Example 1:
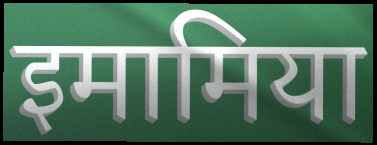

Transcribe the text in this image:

इमामिया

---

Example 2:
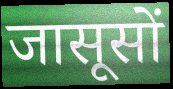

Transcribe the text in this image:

जासूसों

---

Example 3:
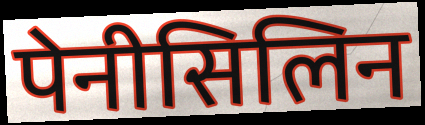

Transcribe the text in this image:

पेनीसिलिन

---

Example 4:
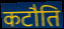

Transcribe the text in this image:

कटौति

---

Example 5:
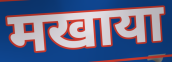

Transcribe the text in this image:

मखाया